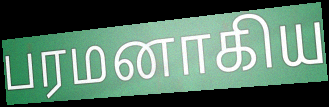
பரமனாகிய